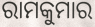
ରାମକୁମାର